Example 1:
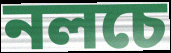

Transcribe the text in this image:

নলচে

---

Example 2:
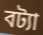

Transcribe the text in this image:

বট্যা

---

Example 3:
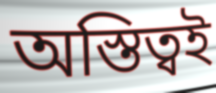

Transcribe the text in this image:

অস্তিত্বই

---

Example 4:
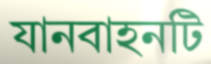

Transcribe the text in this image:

যানবাহনটি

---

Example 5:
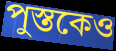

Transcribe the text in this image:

পুস্তকেও